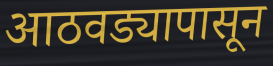
आठवड्यापासून